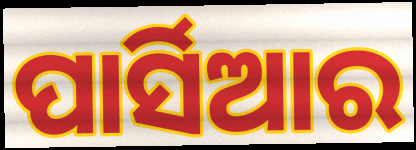
ପାର୍ସିଆର